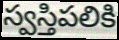
స్వస్తిపలికి